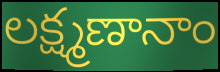
లక్ష్మణానాం